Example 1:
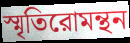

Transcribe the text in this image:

স্মৃতিরোমন্থন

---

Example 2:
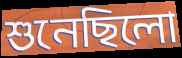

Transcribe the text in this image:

শুনেছিলো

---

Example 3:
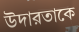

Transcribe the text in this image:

উদারতাকে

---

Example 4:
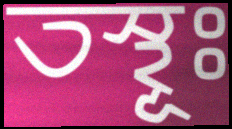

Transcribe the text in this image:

তস্থূঃ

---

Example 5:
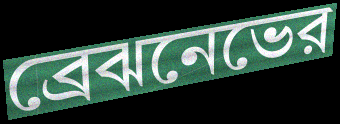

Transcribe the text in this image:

ব্রেঝনেভের